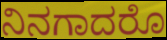
ನಿನಗಾದರೊ